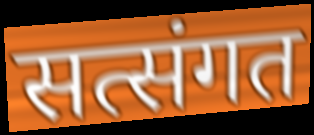
सत्संगत